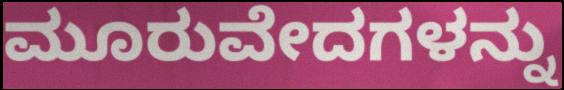
ಮೂರುವೇದಗಳನ್ನು